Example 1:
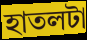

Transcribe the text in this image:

হাতলটা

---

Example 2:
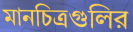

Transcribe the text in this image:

মানচিত্রগুলির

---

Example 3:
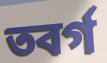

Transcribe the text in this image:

তবর্গ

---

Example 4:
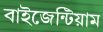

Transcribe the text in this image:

বাইজেন্টিয়াম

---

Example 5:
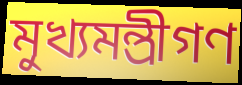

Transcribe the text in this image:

মুখ্যমন্ত্রীগণ